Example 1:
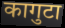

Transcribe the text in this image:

कागुटा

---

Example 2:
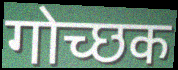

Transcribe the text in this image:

गोच्छक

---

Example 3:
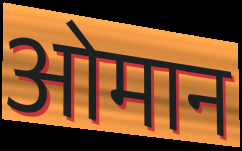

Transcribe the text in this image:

ओमान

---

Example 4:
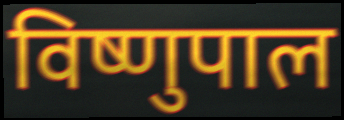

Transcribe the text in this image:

विष्णुपाल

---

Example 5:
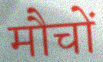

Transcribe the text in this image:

मौचों